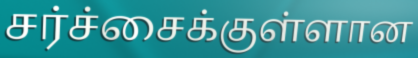
சர்ச்சைக்குள்ளான